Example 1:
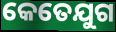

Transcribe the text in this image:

କେତେଯୁଗ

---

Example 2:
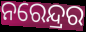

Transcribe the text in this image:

ନରେନ୍ଦ୍ରର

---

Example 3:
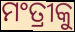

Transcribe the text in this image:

ମଂତ୍ରୀକୁ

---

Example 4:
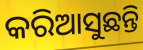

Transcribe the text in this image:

କରିଆସୁଛନ୍ତି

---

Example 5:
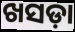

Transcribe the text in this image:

ଖସଡ଼ା